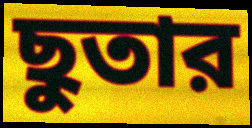
ছুতার